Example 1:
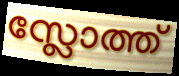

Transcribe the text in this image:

സ്ലോത്ത്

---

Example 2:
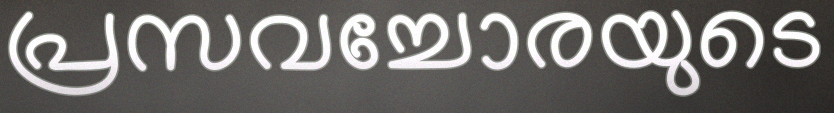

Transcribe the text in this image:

പ്രസവച്ചോരയുടെ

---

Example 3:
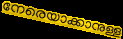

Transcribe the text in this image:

നേരെയാക്കാനുള്ള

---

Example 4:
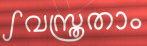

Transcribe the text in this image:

ഽവസ്ത്രതാം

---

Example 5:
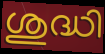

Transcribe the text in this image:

ശുദ്ധി